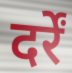
दर्रें